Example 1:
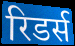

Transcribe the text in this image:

रिडर्स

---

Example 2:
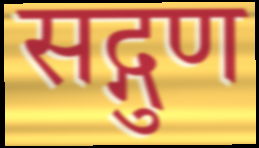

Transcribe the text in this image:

सद्गुण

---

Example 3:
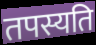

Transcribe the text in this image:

तपस्यति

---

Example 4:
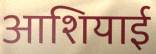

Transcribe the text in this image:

आशियाई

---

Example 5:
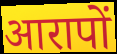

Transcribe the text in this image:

आरापों